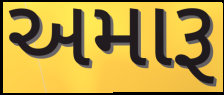
અમારૂ